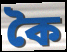
কৈ